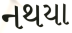
નથયા